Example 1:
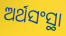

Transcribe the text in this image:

ଅର୍ଥସଂସ୍ଥା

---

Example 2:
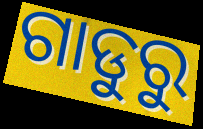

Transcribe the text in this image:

ଗାଡୁରୁ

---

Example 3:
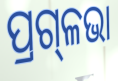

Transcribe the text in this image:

ପ୍ରଗ୍‌ଳଭା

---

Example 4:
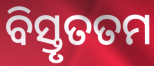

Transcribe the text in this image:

ବିସ୍ତୃତତମ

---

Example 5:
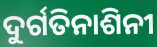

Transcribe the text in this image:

ଦୁର୍ଗତିନାଶିନୀ